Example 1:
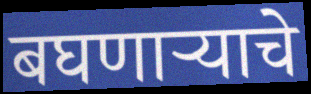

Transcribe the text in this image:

बघणाऱ्याचे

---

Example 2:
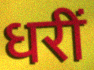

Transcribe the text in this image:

धरीं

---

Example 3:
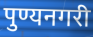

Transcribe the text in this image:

पुण्यनगरी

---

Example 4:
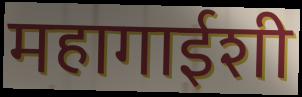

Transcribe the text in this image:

महागाईशी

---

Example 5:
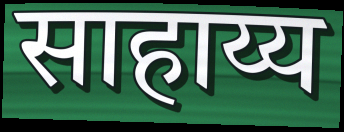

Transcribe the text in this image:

साहाय्य